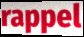
rappel